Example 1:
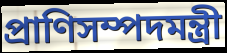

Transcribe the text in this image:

প্রাণিসম্পদমন্ত্রী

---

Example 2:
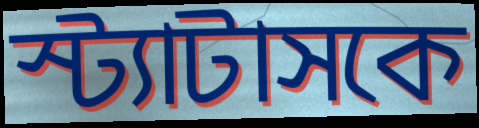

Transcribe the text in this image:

স্ট্যাটাসকে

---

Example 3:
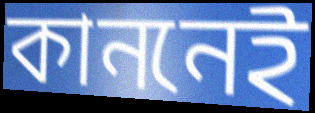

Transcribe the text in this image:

কাননেই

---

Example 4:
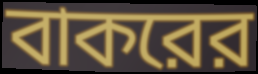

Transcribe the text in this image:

বাকরের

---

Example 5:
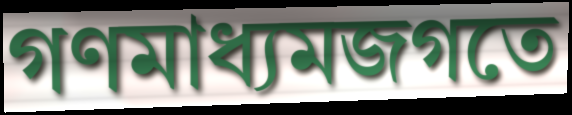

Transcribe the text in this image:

গণমাধ্যমজগতে